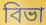
বিভা